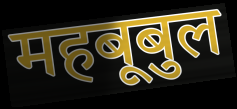
महबूबुल